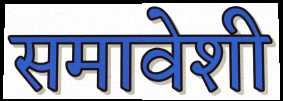
समावेशी